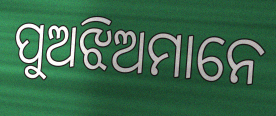
ପୁଅଝିଅମାନେ